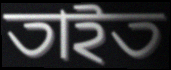
তাইত